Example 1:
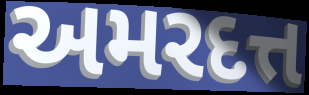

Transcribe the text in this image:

અમરદત્ત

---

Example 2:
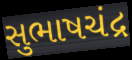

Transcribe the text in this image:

સુભાષચંદ્ર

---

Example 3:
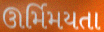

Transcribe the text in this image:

ઊર્મિમયતા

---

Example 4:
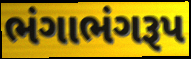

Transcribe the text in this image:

ભંગાભંગરૂપ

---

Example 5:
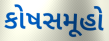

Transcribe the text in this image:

કોષસમૂહો